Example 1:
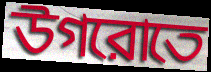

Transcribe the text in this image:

উগরোতে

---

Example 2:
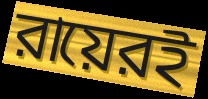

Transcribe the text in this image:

রায়েরই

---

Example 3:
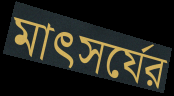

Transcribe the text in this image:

মাৎসর্যের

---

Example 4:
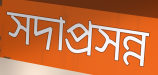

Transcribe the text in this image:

সদাপ্রসন্ন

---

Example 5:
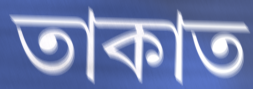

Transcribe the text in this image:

তাকাত